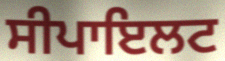
ਸੀਪਾਇਲਟ